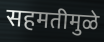
सहमतीमुळे